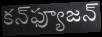
కన్‌ఫ్యూజన్